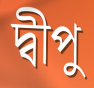
দ্বীপু